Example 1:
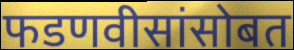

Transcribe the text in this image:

फडणवीसांसोबत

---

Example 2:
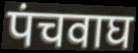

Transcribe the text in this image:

पंचवाघ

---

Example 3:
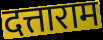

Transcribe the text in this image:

दत्ताराम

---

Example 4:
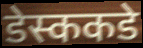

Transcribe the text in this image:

डेस्ककडे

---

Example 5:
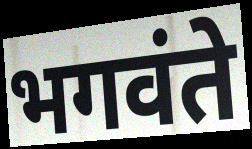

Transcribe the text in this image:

भगवंते